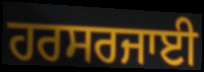
ਹਰਸਰਜਾਈ